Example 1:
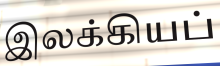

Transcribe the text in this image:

இலக்கியப்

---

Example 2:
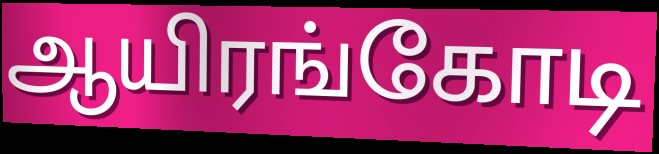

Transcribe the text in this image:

ஆயிரங்கோடி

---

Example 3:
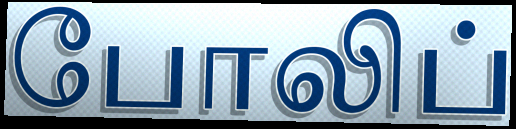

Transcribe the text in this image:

போலிப்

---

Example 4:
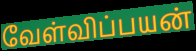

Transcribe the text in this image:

வேள்விப்பயன்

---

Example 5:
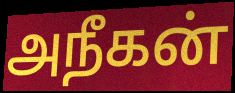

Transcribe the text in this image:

அநீகன்